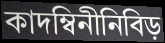
কাদম্বিনীনিবিড়